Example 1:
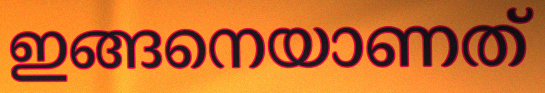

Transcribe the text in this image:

ഇങ്ങനെയാണത്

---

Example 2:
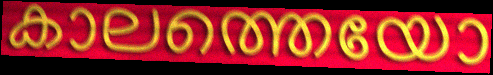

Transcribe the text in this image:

കാലത്തെയോ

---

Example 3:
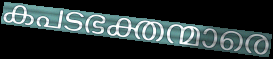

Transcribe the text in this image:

കപടഭക്തന്മാരെ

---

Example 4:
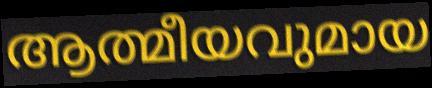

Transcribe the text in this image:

ആത്മീയവുമായ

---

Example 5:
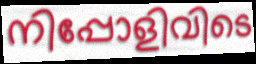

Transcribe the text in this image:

നിപ്പോളിവിടെ